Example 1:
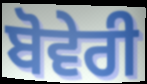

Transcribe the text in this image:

ਬੋਵੇਰੀ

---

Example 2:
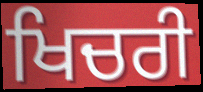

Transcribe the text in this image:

ਖਿਚਰੀ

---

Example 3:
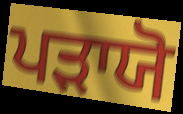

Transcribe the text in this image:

ਪੜਾਯੋ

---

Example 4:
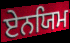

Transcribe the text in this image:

ਏਨਯਿਮ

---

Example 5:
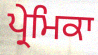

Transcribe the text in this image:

ਪ੍ਰੇਮਿਕਾ